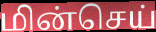
மின்செய்